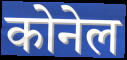
कोनेल